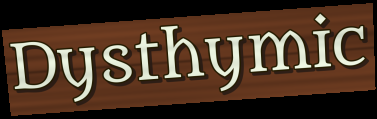
Dysthymic